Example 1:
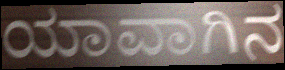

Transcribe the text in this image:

ಯಾವಾಗಿನ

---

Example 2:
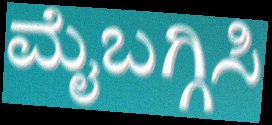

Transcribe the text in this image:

ಮೈಬಗ್ಗಿಸಿ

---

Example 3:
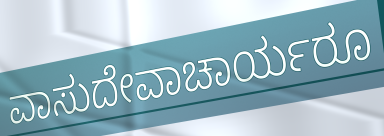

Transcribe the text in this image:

ವಾಸುದೇವಾಚಾರ್ಯರೂ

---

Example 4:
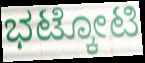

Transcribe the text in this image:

ಭಟ್ಕೋಟಿ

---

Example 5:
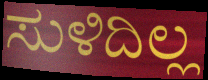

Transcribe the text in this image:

ಸುಳಿದಿಲ್ಲ